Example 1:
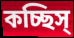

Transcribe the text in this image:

কচ্ছিস্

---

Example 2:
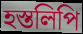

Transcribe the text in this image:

হস্তলিপি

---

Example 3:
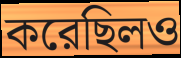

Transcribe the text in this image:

করেছিলও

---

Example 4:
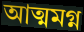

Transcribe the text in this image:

আত্মমগ্ন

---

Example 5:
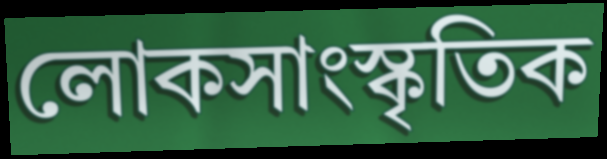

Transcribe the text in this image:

লোকসাংস্কৃতিক